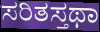
ಸರಿತಸ್ತಥಾ